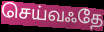
செய்வஃதே